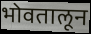
भोवतालून